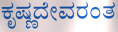
ಕೃಷ್ಣದೇವರಂತ